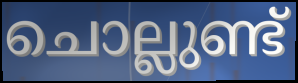
ചൊല്ലുണ്ട്